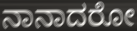
ನಾನಾದರೋ